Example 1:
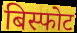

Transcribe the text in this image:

बिस्फोट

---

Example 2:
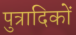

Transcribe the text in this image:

पुत्रादिकों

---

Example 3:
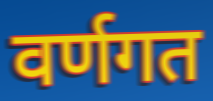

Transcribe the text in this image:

वर्णगत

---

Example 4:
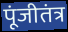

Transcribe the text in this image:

पूंजीतंत्र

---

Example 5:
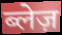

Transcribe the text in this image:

ब्लेज़